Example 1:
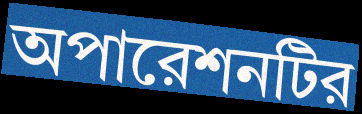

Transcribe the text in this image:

অপারেশনটির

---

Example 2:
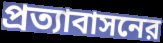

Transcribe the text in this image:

প্রত্যাবাসনের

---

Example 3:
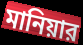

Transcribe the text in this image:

মানিয়ার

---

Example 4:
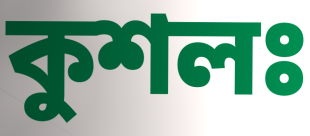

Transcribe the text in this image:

কুশলঃ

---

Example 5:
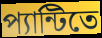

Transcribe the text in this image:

প্যান্টিতে